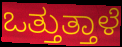
ಒತ್ತುತ್ತಾಳೆ